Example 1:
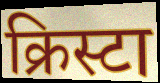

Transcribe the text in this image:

क्रिस्टा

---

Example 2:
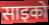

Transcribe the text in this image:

साइको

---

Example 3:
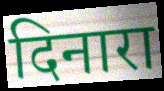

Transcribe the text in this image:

दिनारा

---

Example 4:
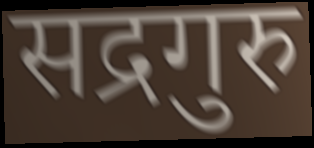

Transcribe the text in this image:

सद्रगुरु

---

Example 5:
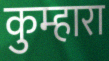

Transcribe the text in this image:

कुम्हारा